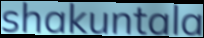
shakuntala